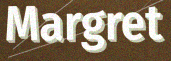
Margret